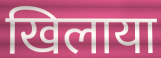
खिलाया